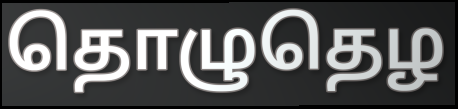
தொழுதெழ